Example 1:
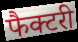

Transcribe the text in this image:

फैक्टरी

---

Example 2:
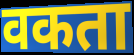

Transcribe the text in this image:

वकता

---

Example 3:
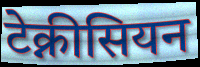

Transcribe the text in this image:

टेक्नीसियन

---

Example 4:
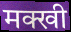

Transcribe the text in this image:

मक्खी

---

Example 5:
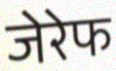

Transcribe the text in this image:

जेरेफ